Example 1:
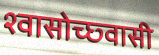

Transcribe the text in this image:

श्वासोच्छ्वासी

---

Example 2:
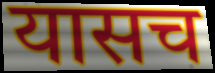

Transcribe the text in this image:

यासच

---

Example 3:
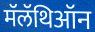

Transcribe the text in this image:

मॅलॅथिऑन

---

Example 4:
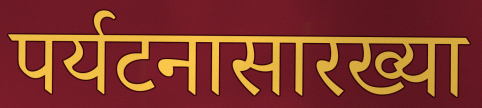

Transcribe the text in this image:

पर्यटनासारख्या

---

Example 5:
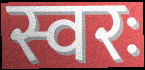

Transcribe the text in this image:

स्वरः